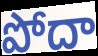
పోదా